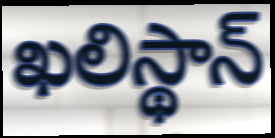
ఖలిస్థాన్